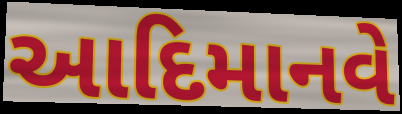
આદિમાનવે